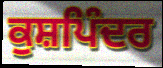
ਕੁਸ਼ਪਿੰਦਰ